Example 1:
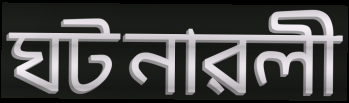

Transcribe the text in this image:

ঘটনাৱলী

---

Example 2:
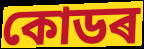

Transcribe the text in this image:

কোডৰ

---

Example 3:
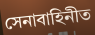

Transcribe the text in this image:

সেনাবাহিনীত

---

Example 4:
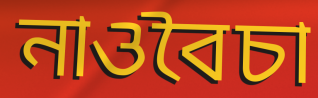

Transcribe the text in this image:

নাওবৈচা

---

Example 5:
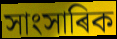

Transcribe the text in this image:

সাংসাৰিক